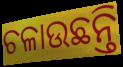
ଚଳାଉଛନ୍ତି